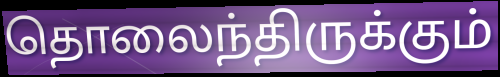
தொலைந்திருக்கும்